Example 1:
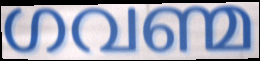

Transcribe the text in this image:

ഗവണ്മ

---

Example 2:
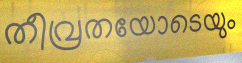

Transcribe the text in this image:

തീവ്രതയോടെയും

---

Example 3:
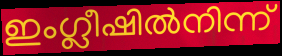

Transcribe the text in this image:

ഇംഗ്ലീഷിൽനിന്ന്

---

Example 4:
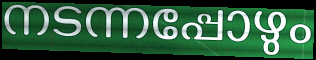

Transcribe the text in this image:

നടന്നപ്പോഴും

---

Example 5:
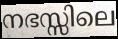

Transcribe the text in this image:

നഭസ്സിലെ